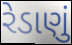
રેડાણું